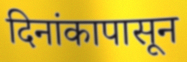
दिनांकापासून